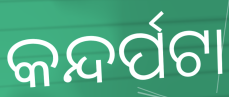
କନ୍ଦର୍ପଟା